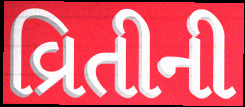
વ્રિતીની